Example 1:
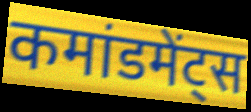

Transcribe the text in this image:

कमांडमेंट्स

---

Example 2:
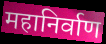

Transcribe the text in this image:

महानिर्वाण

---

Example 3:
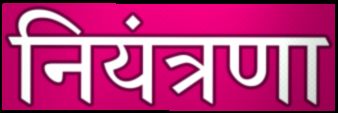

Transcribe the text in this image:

नियंत्रणा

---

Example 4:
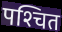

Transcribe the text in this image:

पश्चित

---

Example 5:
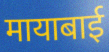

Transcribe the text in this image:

मायाबाई